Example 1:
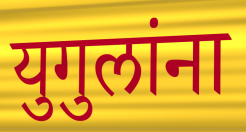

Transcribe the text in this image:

युगुलांना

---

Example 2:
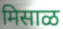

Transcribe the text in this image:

मिसाळ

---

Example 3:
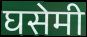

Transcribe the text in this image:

घसेमी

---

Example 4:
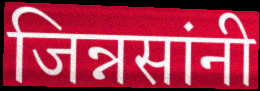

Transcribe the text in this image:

जिन्नसांनी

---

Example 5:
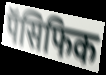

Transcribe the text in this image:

पॅसिफिक